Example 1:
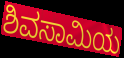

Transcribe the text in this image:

ಶಿವಸಾಮಿಯ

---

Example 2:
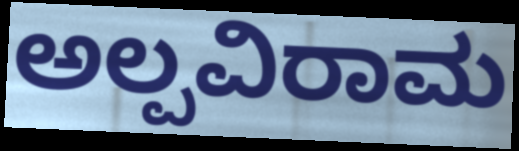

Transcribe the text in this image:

ಅಲ್ಪವಿರಾಮ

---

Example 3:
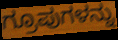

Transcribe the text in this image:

ಗ್ರೂಪುಗಳನ್ನು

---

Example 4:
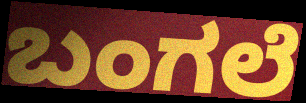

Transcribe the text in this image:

ಬಂಗಲೆ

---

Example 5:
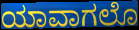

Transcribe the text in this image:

ಯಾವಾಗಲೊ